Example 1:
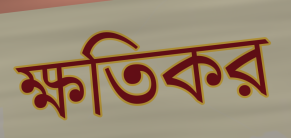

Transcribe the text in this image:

ক্ষতিকর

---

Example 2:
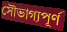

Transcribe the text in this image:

সৌভাগ্যপূর্ণ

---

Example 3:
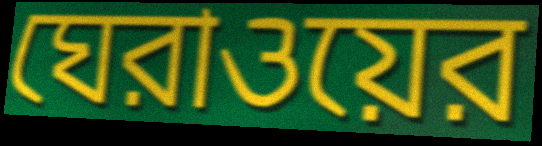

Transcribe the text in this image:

ঘেরাওয়ের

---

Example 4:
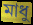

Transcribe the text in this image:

মাধু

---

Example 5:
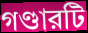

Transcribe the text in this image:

গণ্ডারটি